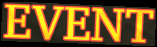
EVENT